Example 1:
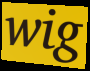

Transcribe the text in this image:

wig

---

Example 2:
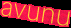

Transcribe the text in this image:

avunu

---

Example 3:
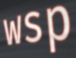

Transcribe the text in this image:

wsp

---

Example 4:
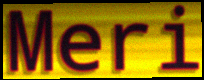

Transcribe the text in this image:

Meri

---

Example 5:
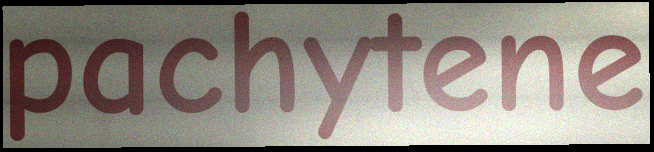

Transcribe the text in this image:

pachytene